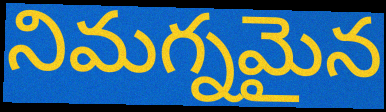
నిమగ్నమైన